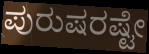
ಪುರುಷರಷ್ಟೇ